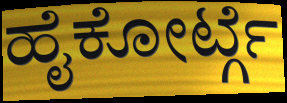
ಹೈಕೋರ್ಟ್ಗೆ